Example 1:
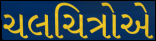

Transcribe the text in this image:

ચલચિત્રોએ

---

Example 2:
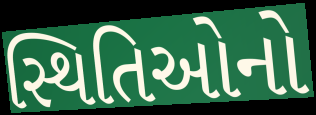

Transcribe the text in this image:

સ્થિતિઓનો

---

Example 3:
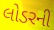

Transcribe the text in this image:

લોડરની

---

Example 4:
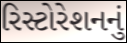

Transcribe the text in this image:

રિસ્ટોરેશનનું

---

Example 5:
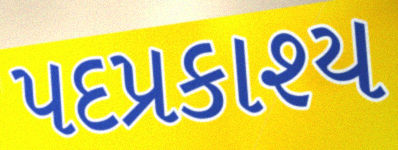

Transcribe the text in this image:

પદપ્રકાશ્ય